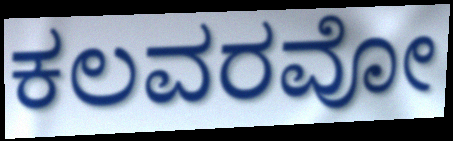
ಕಲವರವೋ